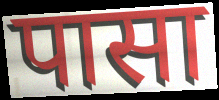
पासा